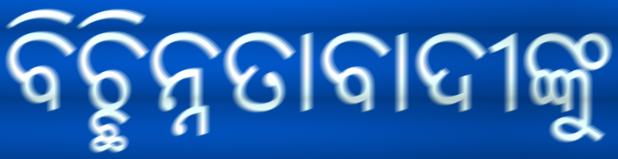
ବିଚ୍ଛିନ୍ନତାବାଦୀଙ୍କୁ